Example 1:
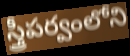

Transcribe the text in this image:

స్త్రీపర్వంలోని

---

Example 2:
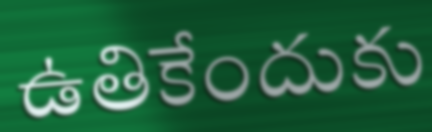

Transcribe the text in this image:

ఉతికేందుకు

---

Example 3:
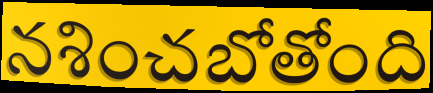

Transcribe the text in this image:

నశించబోతోంది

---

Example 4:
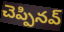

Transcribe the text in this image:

చెప్పినవ్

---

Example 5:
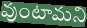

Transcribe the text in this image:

వుంటామని